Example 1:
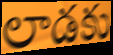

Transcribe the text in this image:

లాడకు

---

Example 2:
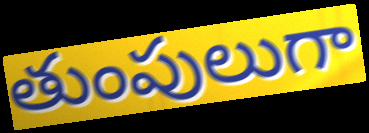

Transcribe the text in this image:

తుంపులుగా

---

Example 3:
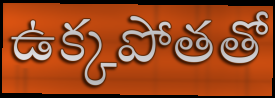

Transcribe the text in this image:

ఉక్కపోతతో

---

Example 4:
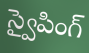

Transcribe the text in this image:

స్వైపింగ్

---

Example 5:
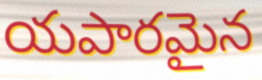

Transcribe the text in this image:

యపారమైన